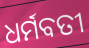
ଧର୍ମବତୀ